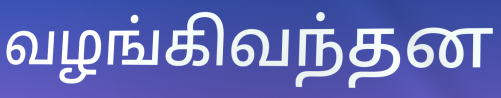
வழங்கிவந்தன